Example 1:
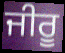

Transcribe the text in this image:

ਜੀਰੂ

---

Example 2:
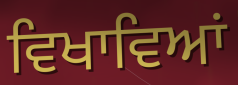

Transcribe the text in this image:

ਵਿਖਾਵਿਆਂ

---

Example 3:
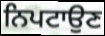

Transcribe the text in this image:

ਨਿਪਟਾਉਣ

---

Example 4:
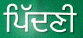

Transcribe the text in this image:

ਪਿੱਦਣੀ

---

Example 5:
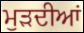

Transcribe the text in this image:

ਮੁੜਦੀਆਂ